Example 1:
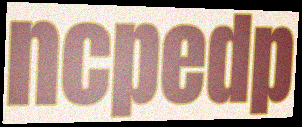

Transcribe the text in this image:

ncpedp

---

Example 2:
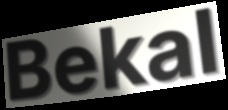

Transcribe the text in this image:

Bekal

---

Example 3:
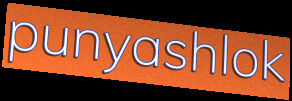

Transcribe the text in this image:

punyashlok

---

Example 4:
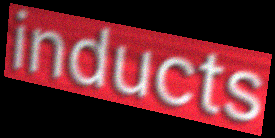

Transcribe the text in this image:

inducts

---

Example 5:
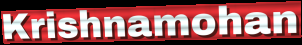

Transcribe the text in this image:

Krishnamohan